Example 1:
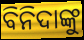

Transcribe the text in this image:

ବିନିଦାଙ୍କୁ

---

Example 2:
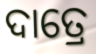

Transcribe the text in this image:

ଦାତ୍ରେ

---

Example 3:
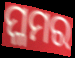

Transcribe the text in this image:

ପ୍ଳମର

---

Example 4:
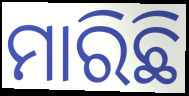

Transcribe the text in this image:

ମାରିଛି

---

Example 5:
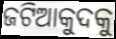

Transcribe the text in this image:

ଜଟିଆକୁଦକୁ